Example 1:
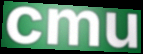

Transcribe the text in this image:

cmu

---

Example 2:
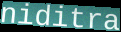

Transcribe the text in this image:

niditra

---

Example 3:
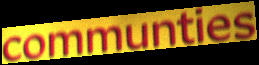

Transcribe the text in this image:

communties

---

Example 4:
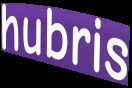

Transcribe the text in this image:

hubris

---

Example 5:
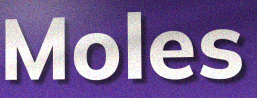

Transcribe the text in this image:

Moles